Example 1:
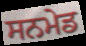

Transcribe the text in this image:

ਸਨਮੇਡ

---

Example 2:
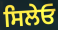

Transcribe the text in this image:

ਸਿਲੇਓ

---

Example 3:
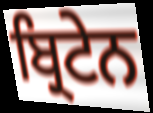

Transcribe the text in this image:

ਬ੍ਰਿਟੇਨ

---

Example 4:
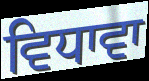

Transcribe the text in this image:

ਵਿਧਾਵਾ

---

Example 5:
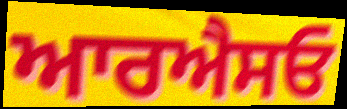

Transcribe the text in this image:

ਆਰਐਸਓ